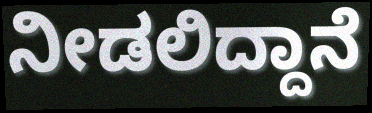
ನೀಡಲಿದ್ದಾನೆ